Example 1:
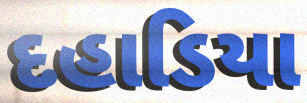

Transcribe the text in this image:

દહાડિયા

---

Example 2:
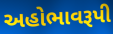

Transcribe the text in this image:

અહોભાવરૂપી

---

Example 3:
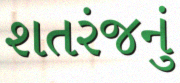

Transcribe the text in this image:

શતરંજનું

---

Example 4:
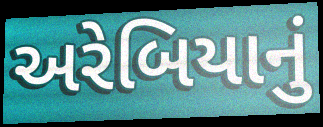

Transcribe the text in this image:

અરેબિયાનું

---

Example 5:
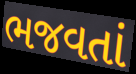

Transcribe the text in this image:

ભજવતાં